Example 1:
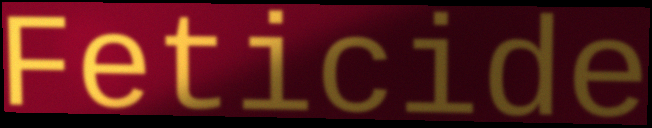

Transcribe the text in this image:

Feticide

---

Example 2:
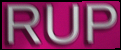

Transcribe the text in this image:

RUP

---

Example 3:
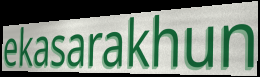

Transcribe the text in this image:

ekasarakhun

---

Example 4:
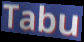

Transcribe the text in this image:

Tabu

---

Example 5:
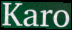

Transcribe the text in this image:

Karo